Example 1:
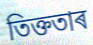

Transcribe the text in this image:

তিক্ততাৰ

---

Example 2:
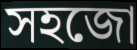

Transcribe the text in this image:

সহজো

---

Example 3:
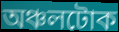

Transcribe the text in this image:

অঞ্চলটোক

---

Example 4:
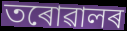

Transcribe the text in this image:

তৰোৱালৰ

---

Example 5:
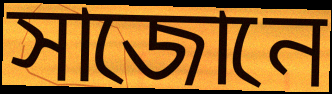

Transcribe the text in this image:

সাজোনে